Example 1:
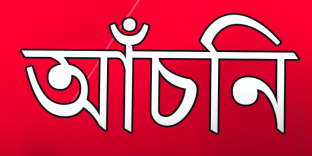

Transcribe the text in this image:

আঁচনি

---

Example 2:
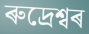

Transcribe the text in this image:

ৰুদ্ৰেশ্বৰ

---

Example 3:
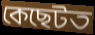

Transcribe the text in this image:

কেছেটত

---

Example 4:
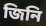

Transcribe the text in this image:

জিনি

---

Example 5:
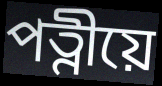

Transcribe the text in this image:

পত্নীয়ে